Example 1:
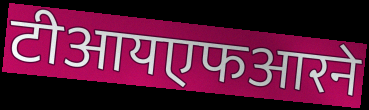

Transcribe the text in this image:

टीआयएफआरने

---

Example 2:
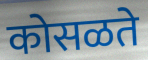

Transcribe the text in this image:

कोसळते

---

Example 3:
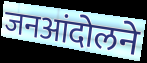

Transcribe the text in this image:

जनआंदोलने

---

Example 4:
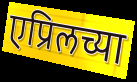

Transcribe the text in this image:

एप्रिलच्या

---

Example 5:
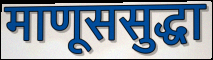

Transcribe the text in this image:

माणूससुद्धा